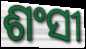
ଶଂସୀ